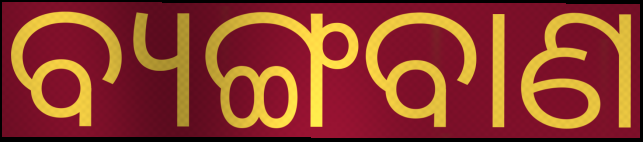
ବ୍ୟଙ୍ଗବାଣ